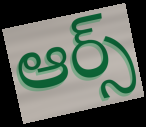
ఆర్స్